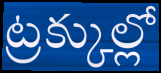
ట్రక్కుల్లో